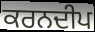
ਕਰਨਦੀਪ